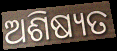
ଅଶିଷ୍ଯତ